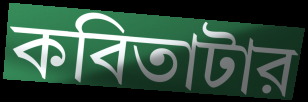
কবিতাটার